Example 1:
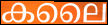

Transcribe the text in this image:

കലൈ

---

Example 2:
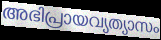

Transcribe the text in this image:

അഭിപ്രായവ്യത്യാസം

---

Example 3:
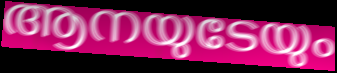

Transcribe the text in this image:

ആനയുടേയും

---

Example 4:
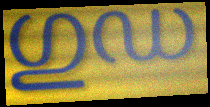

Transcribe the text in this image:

ഗുഡ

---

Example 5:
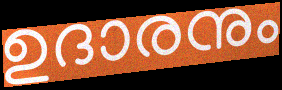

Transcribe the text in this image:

ഉദാരനും